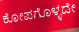
ಕೋಪಗೊಳ್ಳದೇ